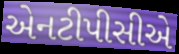
એનટીપીસીએ